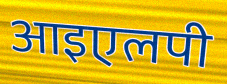
आइएलपी